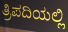
ತ್ರಿಪದಿಯಲ್ಲಿ